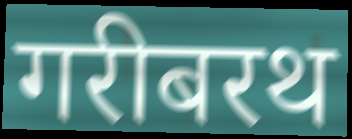
गरीबरथ